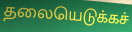
தலையெடுக்கச்